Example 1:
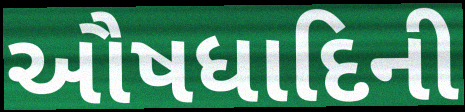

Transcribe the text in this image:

ઔષધાદિની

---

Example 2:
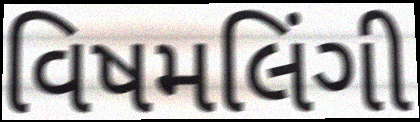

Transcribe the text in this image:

વિષમલિંગી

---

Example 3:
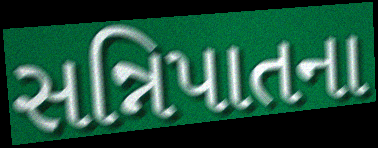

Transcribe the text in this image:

સન્નિપાતના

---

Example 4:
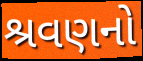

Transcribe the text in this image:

શ્રવણનો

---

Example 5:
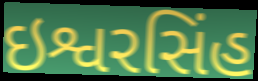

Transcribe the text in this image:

ઇશ્વરસિંહ